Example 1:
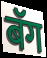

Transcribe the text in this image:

बॅग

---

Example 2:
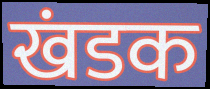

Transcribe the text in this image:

खंडक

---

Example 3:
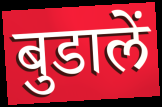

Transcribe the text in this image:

बुडालें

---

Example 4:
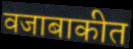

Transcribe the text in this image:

वजाबाकीत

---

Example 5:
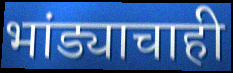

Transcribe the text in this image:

भांड्याचाही